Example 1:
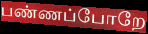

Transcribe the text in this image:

பண்ணப்போறே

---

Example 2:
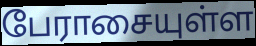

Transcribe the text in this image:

பேராசையுள்ள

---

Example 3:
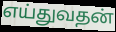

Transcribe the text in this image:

எய்துவதன்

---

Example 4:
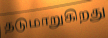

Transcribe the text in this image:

தடுமாறுகிறது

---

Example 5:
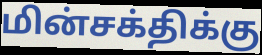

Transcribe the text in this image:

மின்சக்திக்கு